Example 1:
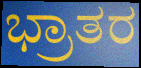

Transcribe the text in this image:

ಭ್ರಾತರ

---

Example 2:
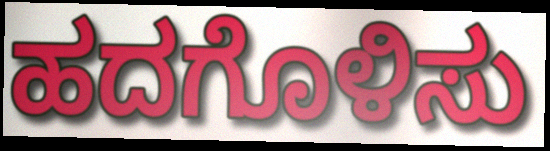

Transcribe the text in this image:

ಹದಗೊಳಿಸು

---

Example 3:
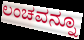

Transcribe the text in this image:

ಲಂಚವನ್ನೂ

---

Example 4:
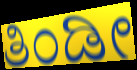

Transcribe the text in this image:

ತಿಂಡೀ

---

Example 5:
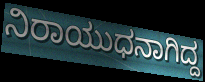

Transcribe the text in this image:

ನಿರಾಯುಧನಾಗಿದ್ದ